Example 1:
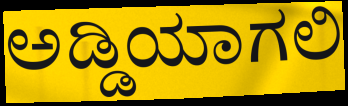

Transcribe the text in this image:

ಅಡ್ಡಿಯಾಗಲಿ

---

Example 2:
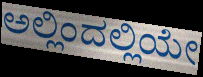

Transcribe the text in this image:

ಅಲ್ಲಿಂದಲ್ಲಿಯೇ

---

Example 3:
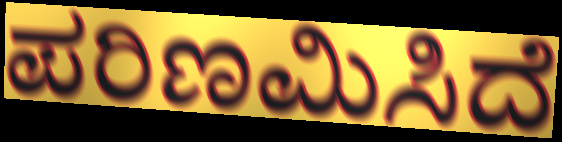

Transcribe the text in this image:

ಪರಿಣಮಿಸಿದೆ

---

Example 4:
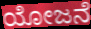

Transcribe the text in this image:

ಯೋಜನೆ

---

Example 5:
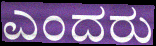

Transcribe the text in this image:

ಎಂದರು